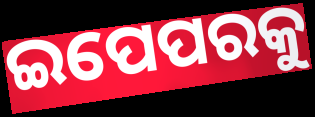
ଇପେପରକୁ